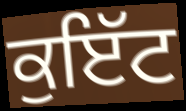
ਕੁਇੱਟ